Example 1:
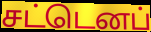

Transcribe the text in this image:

சட்டெனப்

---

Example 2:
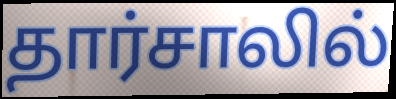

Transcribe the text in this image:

தார்சாலில்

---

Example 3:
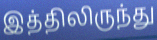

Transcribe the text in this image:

இத்திலிருந்து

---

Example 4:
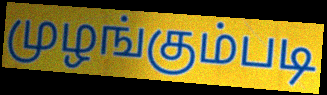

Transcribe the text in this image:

முழங்கும்படி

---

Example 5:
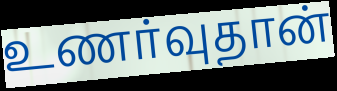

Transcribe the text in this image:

உணர்வுதான்